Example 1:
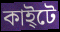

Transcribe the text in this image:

কাই্টে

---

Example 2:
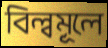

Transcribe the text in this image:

বিল্বমূলে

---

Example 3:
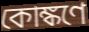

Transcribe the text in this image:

কোঙ্কণে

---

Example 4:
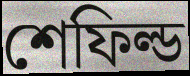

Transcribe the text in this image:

শেফিল্ড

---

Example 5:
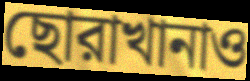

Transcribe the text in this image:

ছোরাখানাও